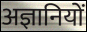
अज्ञानियों